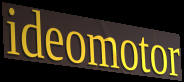
ideomotor